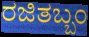
ರಜಿತಬ್ಬಂ